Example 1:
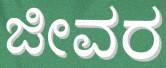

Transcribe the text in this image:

ಜೀವರ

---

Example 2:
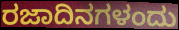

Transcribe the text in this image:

ರಜಾದಿನಗಳಂದು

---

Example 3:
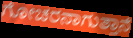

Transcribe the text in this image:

ಗೋಚರನಾಗುತ್ತಾನೆ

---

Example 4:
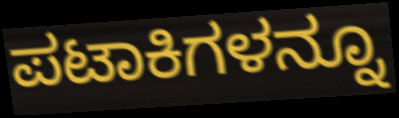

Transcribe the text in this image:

ಪಟಾಕಿಗಳನ್ನೂ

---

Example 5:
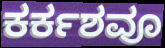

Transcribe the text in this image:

ಕರ್ಕಶವೂ